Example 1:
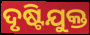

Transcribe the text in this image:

ଦୃଷ୍ଟିଯୁକ୍ତ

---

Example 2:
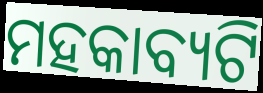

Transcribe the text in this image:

ମହକାବ୍ୟଟି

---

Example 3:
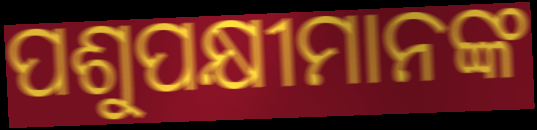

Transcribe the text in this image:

ପଶୁପକ୍ଷୀମାନଙ୍କ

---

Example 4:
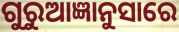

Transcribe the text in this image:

ଗୁରୁଆଜ୍ଞାନୁସାରେ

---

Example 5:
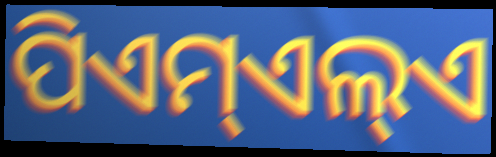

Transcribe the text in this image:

ପିଏମ୍ଏଲ୍ଏ